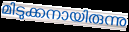
മിടുക്കനായിരുന്നു